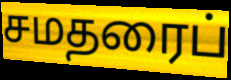
சமதரைப்